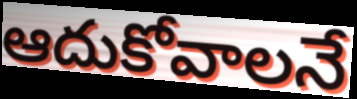
ఆదుకోవాలనే